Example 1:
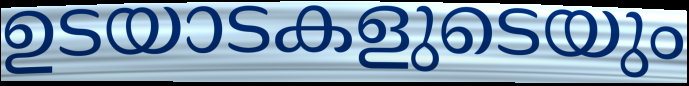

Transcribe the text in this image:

ഉടയാടകളുടെയും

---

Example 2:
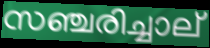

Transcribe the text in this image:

സഞ്ചരിച്ചാല്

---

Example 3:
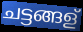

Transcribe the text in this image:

ചട്ടങ്ങള്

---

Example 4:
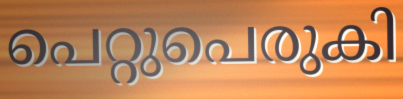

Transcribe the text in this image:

പെറ്റുപെരുകി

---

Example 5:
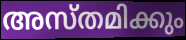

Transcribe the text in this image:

അസ്തമിക്കും